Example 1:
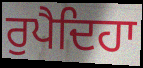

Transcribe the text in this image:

ਰੁਪੈਦਿਹਾ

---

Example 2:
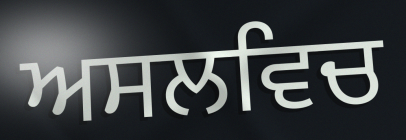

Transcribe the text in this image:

ਅਸਲਵਿਚ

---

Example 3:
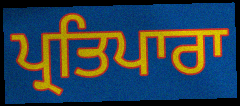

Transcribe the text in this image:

ਪ੍ਰਤਿਪਾਰਾ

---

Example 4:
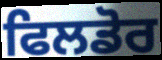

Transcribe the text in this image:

ਫਿਲਡੋਰ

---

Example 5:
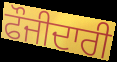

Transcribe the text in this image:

ਫੌਜੀਦਾਰੀ